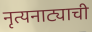
नृत्यनाट्याची